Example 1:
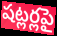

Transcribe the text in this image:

షట్లర్లపై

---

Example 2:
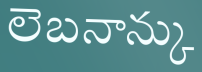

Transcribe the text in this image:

లెబనాన్కు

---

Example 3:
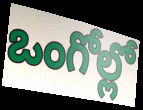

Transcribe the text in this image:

ఒంగోల్లో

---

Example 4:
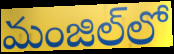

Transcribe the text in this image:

మంజిల్‌లో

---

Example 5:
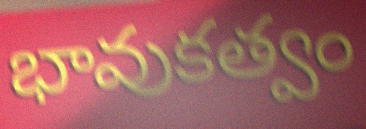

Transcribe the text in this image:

భావుకత్వం